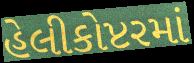
હેલીકોપ્ટરમાં